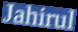
Jahirul